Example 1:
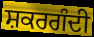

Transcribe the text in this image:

ਸ਼ਕਰਗੰਦੀ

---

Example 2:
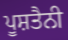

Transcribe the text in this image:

ਪੂਸ਼ਤੈਨੀ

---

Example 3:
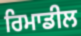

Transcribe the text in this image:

ਰਿਮਾਡੀਲ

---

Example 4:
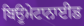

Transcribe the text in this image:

ਬਿਊਮੇਟਾਨਾਈਡ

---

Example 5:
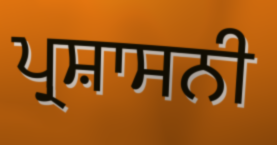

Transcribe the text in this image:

ਪ੍ਰਸ਼ਾਸਨੀ